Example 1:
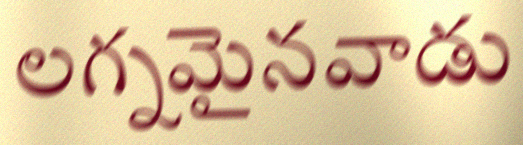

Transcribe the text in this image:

లగ్నమైనవాడు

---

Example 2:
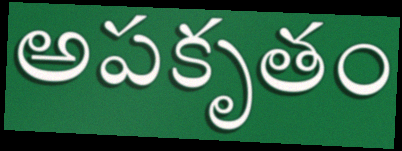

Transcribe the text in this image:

అపకృతం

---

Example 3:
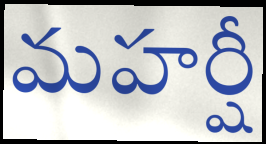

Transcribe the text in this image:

మహర్షీ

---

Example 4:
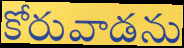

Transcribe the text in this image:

కోరువాడను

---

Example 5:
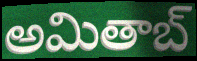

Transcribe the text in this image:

అమితాబ్